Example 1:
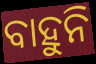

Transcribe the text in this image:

ବାହୁନି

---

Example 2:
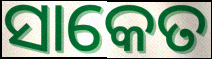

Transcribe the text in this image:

ସାକେତ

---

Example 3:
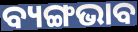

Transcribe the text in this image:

ବ୍ୟଙ୍ଗଭାବ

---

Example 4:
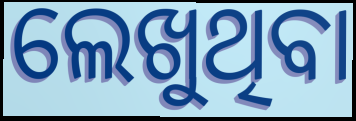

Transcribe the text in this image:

ଲେଖୁଥିବା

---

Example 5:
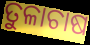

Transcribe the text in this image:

ତୁଳାଚାଷ